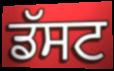
ਡੱਸਟ